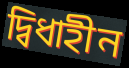
দ্বিধাহীন